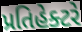
પ્રતિહેક્ટરે